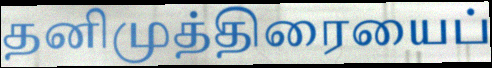
தனிமுத்திரையைப்